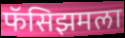
फॅसिझमला